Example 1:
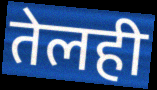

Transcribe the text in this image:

तेलही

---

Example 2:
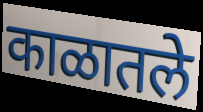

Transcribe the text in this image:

काळातले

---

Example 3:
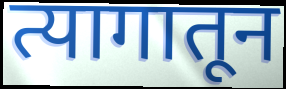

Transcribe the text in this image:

त्यागातून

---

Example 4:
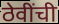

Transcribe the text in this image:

ठेवींची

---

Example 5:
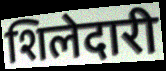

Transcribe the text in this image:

शिलेदारी